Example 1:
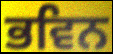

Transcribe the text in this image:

ਭਵਿਨ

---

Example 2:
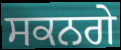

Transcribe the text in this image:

ਸਕਨਗੇ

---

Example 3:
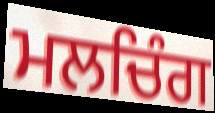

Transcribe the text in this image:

ਮਲਚਿੰਗ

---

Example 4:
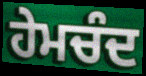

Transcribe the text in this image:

ਹੇਮਚੰਦ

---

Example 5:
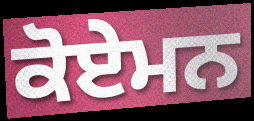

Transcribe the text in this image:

ਕੋਏਮਨ